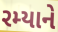
રમ્યાને